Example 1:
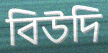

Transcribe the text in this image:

বিউদি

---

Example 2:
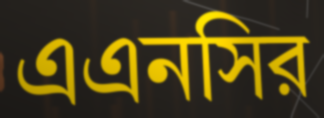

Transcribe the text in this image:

এএনসির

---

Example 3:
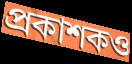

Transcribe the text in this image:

প্রকাশকও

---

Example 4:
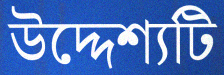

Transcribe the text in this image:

উদ্দেশ্যটি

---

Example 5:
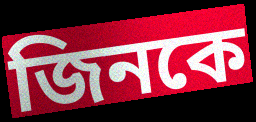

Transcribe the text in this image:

জিনকে